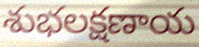
శుభలక్షణాయ